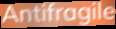
Antifragile